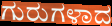
ಗುರುಗಳಾದ